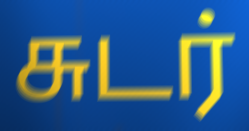
சுடர்